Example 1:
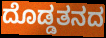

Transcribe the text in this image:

ದೊಡ್ಡತನದ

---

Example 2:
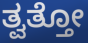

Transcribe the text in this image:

ತ್ವತ್ತೋ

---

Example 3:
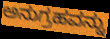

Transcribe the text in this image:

ಅನುಗ್ರಹವನ್ನು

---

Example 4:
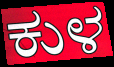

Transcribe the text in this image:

ಕುಳ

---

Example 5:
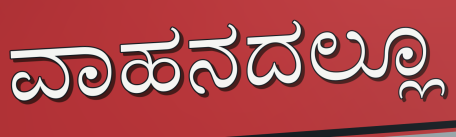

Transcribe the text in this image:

ವಾಹನದಲ್ಲೂ